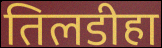
तिलडीहा